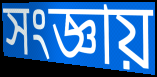
সংজ্ঞায়